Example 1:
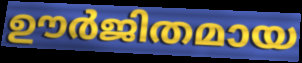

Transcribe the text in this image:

ഊർജിതമായ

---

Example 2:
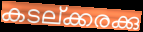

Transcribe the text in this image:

കടല്ക്കരക്കു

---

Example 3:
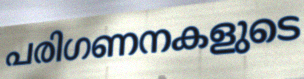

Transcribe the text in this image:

പരിഗണനകളുടെ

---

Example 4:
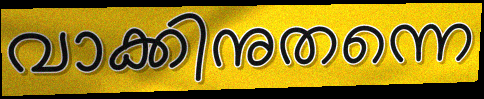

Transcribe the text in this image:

വാക്കിനുതന്നെ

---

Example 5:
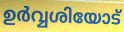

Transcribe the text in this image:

ഉർവ്വശിയോട്